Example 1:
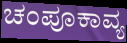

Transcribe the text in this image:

ಚಂಪೂಕಾವ್ಯ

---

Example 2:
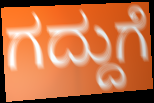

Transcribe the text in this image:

ಗದ್ದುಗೆ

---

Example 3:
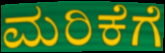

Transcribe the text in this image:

ಮರಿಕೆಗೆ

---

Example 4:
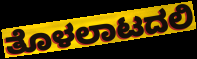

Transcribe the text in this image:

ತೊಳಲಾಟದಲಿ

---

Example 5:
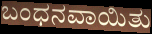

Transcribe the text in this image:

ಬಂಧನವಾಯಿತು